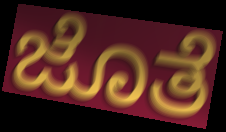
ಜೊತೆ